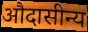
औदासीन्य